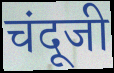
चंदूजी